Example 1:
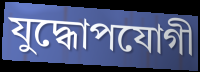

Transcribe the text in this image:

যুদ্ধোপযোগী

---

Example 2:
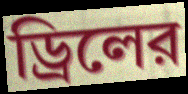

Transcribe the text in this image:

ড্রিলের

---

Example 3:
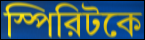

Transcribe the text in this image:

স্পিরিটকে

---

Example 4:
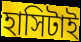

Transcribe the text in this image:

হাসিটাই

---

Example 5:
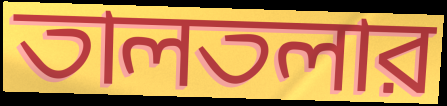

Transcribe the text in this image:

তালতলার